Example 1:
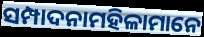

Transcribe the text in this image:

ସମ୍ପାଦନାମହିଳାମାନେ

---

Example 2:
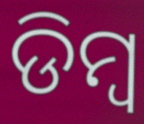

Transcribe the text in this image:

ଡିମ୍ଵ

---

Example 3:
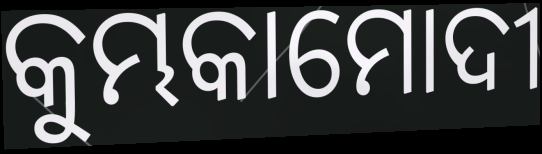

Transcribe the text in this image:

କୁମ୍ଭକାମୋଦୀ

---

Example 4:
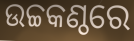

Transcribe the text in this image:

ଉଚ୍ଚକଣ୍ଠରେ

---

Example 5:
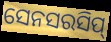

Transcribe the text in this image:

ସେନସରସିପ୍